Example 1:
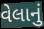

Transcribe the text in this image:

વેલાનું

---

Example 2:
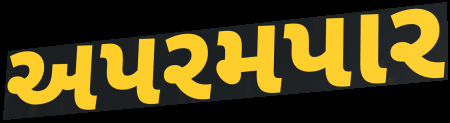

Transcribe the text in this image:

અપરમપાર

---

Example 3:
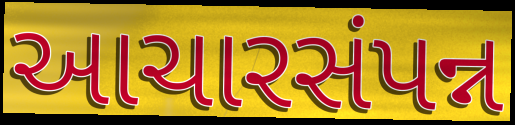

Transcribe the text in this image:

આચારસંપન્ન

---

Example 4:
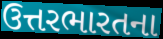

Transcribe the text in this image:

ઉત્તરભારતના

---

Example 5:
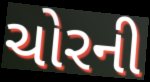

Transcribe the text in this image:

ચોરની